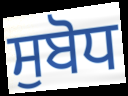
ਸੁਬੋਧ